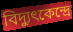
বিদ্যুৎকেন্দ্রে